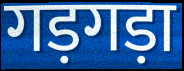
गड़गड़ा